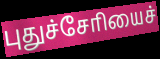
புதுச்சேரியைச்